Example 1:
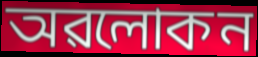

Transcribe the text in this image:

অৱলোকন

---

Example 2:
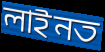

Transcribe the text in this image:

লাইনত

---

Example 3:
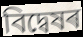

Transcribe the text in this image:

বিদ্বেষৰ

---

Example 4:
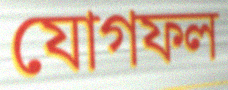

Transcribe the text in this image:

যোগফল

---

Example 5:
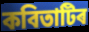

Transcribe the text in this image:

কবিতাটিৰ